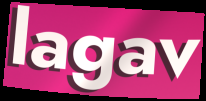
lagav